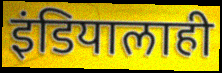
इंडियालाही